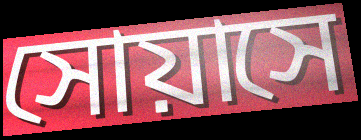
সোয়াসে